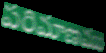
పరిమాణము